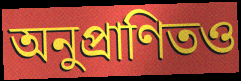
অনুপ্রাণিতও